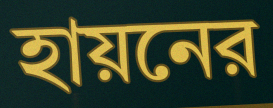
হায়নের